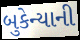
બુકેન્યાની